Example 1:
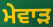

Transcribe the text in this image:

ਮੇਵਾੜ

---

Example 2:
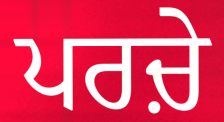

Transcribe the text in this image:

ਪਰਚ਼ੇ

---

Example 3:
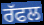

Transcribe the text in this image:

ਰੱਫਲ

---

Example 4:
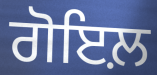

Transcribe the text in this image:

ਗੋਇਲ਼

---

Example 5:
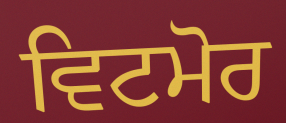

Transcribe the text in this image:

ਵਿਟਮੋਰ